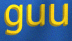
guu